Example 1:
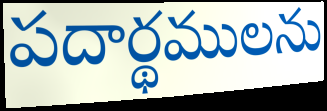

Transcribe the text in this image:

పదార్థములను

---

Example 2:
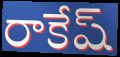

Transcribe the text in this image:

రాకేష్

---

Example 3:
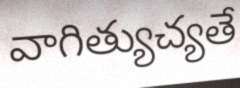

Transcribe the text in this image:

వాగిత్యుచ్యతే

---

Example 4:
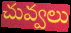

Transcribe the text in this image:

చువ్వలు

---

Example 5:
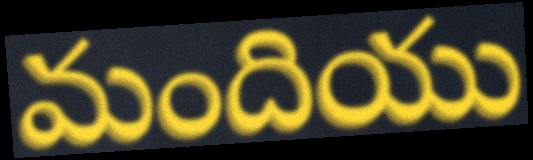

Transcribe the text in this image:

మందియు